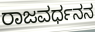
ರಾಜವರ್ಧನನ